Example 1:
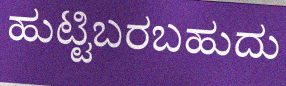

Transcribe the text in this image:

ಹುಟ್ಟಿಬರಬಹುದು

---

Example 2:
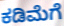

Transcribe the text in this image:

ಕಡಿಮೆಗೆ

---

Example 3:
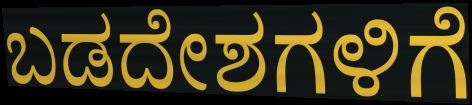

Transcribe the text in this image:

ಬಡದೇಶಗಳಿಗೆ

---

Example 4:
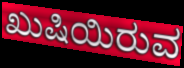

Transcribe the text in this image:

ಖುಷಿಯಿರುವ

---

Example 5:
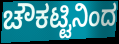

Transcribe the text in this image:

ಚೌಕಟ್ಟಿನಿಂದ